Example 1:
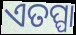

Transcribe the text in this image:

ଏତପ୍ପା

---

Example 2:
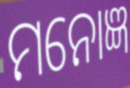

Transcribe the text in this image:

ମନୋଜ୍ଞ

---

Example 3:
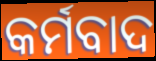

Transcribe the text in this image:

କର୍ମବାଦ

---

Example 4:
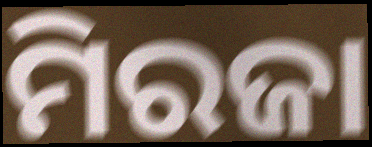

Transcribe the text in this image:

ମିରଜା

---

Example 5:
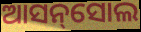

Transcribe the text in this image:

ଆସନ୍‌ସୋଲ